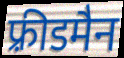
फ़्रीडमैन